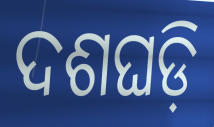
ଦଶଘଡ଼ି